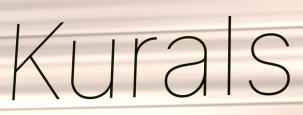
Kurals